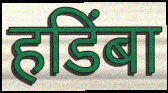
हडिंबा